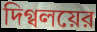
দিগ্বলয়ের